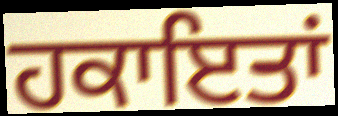
ਹਕਾਇਤਾਂ